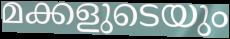
മക്കളുടെയും